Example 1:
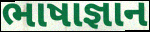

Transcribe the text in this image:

ભાષાજ્ઞાન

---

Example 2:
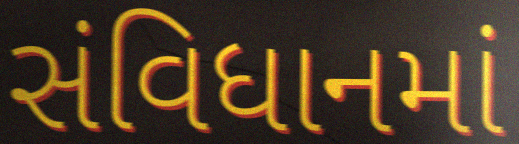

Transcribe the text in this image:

સંવિધાનમાં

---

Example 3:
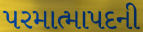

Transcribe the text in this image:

પરમાત્માપદની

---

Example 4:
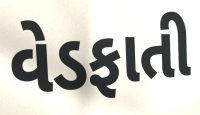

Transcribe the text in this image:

વેડફાતી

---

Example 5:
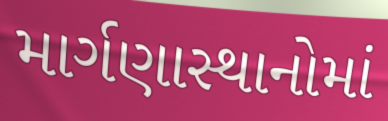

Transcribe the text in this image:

માર્ગણાસ્થાનોમાં